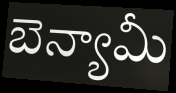
బెన్యామీ